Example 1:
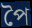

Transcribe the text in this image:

পৈ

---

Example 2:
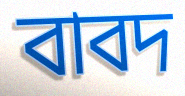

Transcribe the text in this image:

বাবদ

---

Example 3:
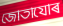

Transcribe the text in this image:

জোতাযোৰ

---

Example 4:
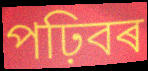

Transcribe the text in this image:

পঢ়িবৰ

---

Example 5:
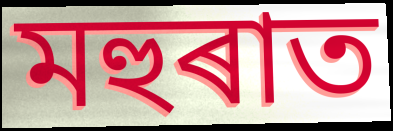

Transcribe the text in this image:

মহুৰাত